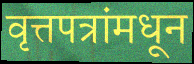
वृत्तपत्रांमधून